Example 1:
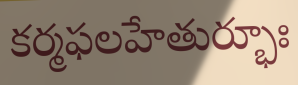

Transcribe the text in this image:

కర్మఫలహేతుర్భూః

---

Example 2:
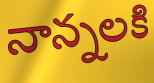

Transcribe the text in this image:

నాన్నలకి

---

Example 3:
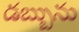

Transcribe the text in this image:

డబ్బును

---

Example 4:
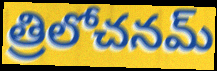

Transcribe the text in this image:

త్రిలోచనమ్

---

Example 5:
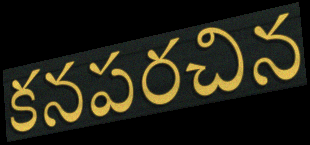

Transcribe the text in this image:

కనపరచిన